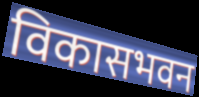
विकासभवन